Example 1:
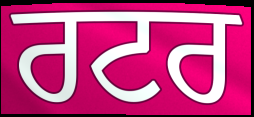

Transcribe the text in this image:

ਰਟਰ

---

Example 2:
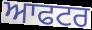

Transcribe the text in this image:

ਆਫਟਰ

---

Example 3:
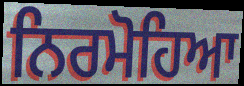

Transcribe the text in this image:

ਨਿਰਮੋਹਿਆ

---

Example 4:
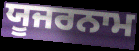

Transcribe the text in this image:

ਯੂਜਰਨਾਮ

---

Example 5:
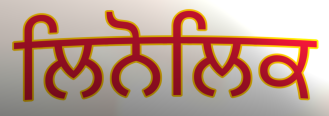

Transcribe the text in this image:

ਲਿਨੋਲਿਕ